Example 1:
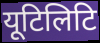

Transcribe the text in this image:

यूटिलिटि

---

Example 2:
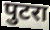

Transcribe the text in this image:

पुटरा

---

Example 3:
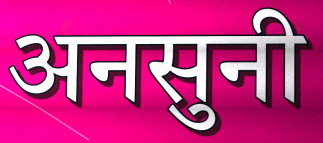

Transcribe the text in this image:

अनसुनी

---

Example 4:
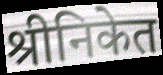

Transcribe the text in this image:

श्रीनिकेत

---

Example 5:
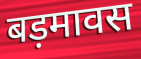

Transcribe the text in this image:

बड़मावस